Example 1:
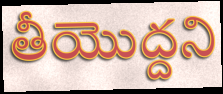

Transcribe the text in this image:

తీయొద్దని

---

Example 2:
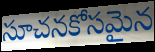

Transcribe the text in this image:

సూచనకోసమైన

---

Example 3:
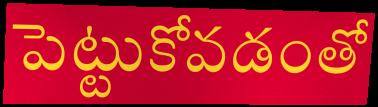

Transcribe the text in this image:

పెట్టుకోవడంతో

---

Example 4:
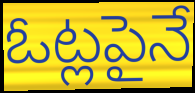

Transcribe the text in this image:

ఓట్లపైనే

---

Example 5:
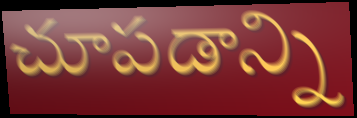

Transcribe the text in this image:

చూపడాన్ని